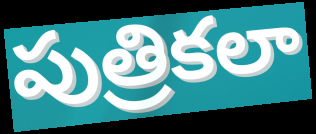
పుత్రికలా